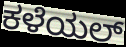
ಕಳೆಯಲ್